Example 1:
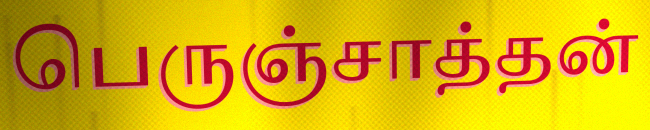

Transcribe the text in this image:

பெருஞ்சாத்தன்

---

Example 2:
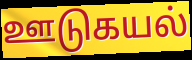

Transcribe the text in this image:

ஊடுகயல்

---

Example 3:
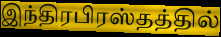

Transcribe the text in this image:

இந்திரபிரஸ்தத்தில்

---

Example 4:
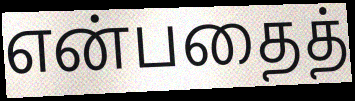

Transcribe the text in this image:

என்பதைத்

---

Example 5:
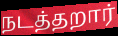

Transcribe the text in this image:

நடத்தறார்